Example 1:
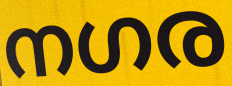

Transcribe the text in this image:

നഗര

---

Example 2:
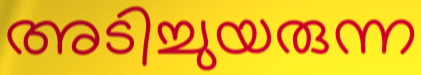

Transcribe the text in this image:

അടിച്ചുയരുന്ന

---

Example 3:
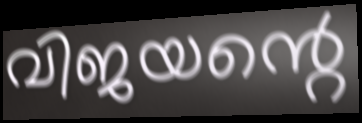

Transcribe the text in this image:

വിജയന്റെ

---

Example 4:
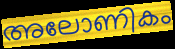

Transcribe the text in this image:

അലോണികം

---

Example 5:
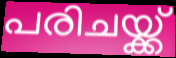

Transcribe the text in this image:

പരിചയ്ക്ക്